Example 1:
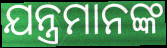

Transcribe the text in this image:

ଯନ୍ତ୍ରମାନଙ୍କ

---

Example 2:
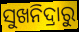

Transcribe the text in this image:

ସୁଖନିଦ୍ରାରୁ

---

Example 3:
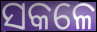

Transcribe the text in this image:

ସକଳେ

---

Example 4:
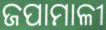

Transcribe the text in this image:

ଜପାମାଳୀ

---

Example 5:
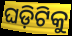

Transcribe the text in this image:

ଘଡ଼ିଟିକୁ